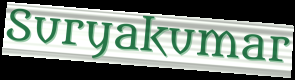
Suryakumar